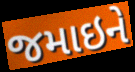
જમાઇને